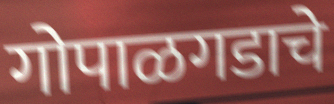
गोपाळगडाचे